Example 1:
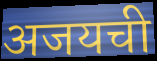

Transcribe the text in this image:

अजयची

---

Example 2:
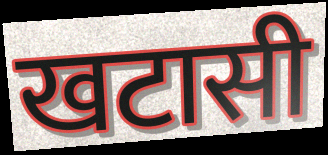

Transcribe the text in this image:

खटासी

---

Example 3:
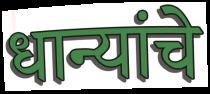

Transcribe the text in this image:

धान्यांचे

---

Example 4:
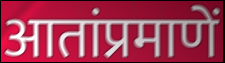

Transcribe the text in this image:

आतांप्रमाणें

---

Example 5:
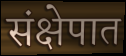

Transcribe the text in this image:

संक्षेपात